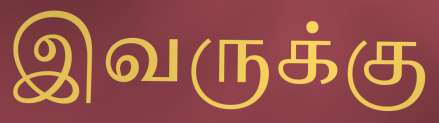
இவருக்கு